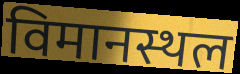
विमानस्थल